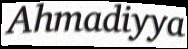
Ahmadiyya